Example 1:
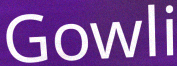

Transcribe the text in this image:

Gowli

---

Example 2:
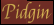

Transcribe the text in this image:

Pidgin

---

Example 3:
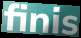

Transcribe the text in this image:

finis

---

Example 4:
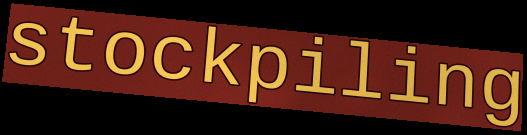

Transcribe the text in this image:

stockpiling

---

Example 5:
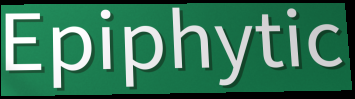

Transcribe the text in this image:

Epiphytic